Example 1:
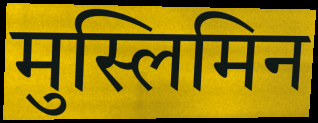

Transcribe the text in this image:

मुस्लिमिन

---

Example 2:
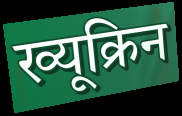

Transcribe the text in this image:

ख्यूक्रिन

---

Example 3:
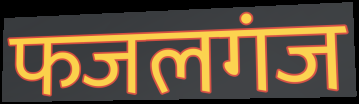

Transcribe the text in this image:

फजलगंज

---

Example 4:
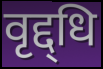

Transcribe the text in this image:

वृद्द्धि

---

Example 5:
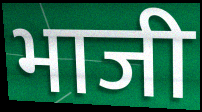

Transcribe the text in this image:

भाजी